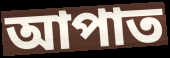
আপাত